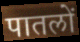
पातलों